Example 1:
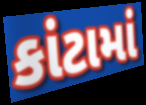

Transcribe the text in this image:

કાંટામાં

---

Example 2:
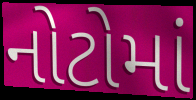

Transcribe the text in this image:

નોટોમાં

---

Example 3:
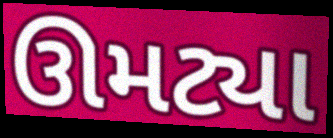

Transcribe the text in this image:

ઊમટ્યા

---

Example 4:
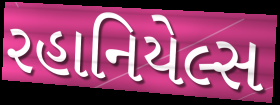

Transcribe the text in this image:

રહાનિયેલ્સ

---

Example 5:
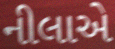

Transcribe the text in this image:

નીલાએ